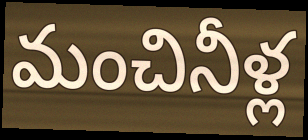
మంచినీళ్ల